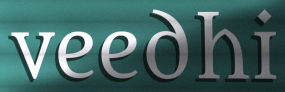
veedhi